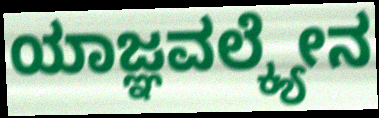
ಯಾಜ್ಞವಲ್ಕ್ಯೇನ